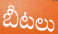
బీటలు